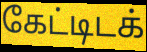
கேட்டிடக்